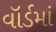
વૉર્ડમાં